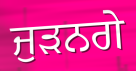
ਜੁਡ਼ਨਗੇ